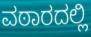
ವಠಾರದಲ್ಲಿ